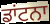
ਡਾਂਟਨਾ